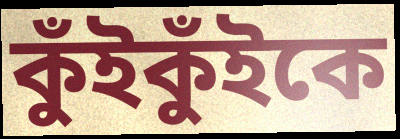
কুঁইকুঁইকে